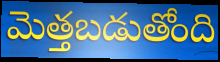
మెత్తబడుతోంది